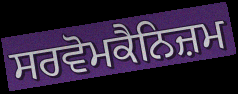
ਸਰਵੋਮਕੈਨਿਜ਼ਮ